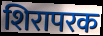
शिरापरक